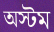
অস্টম